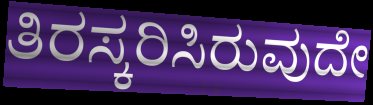
ತಿರಸ್ಕರಿಸಿರುವುದೇ